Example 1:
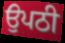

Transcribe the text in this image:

ਉਪਠੀ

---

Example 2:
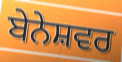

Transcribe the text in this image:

ਬੇਨੇਸ਼ਵਰ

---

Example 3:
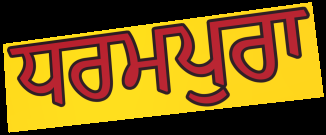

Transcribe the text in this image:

ਧਰਮਪੁਰਾ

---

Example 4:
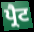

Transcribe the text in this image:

ਪ੍ਰੈਟ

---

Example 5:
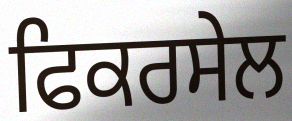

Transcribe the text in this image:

ਫਿਕਰਸੇਲ